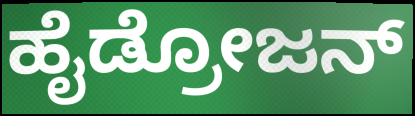
ಹೈಡ್ರೋಜನ್